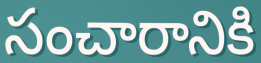
సంచారానికి